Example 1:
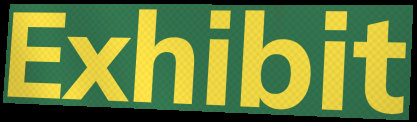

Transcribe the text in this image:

Exhibit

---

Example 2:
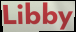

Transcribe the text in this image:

Libby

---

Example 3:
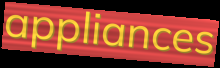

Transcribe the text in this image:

appliances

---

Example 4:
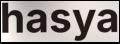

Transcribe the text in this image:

hasya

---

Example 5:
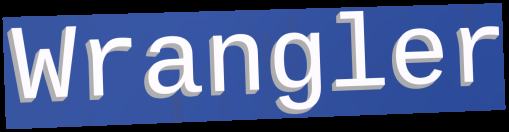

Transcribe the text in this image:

Wrangler